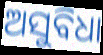
ଅସୁବିଧା